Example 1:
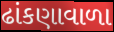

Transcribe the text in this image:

ઢાંકણાવાળા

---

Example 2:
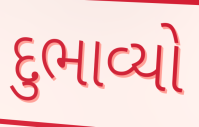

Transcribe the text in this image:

દુભાવ્યો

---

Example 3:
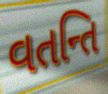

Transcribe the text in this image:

વતન્તિ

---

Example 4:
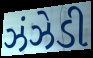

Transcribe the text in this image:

ઝંઝેડી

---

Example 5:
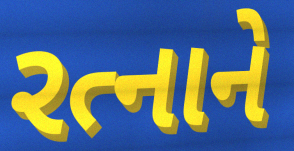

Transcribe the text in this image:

રત્નાને